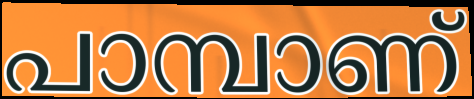
പാമ്പാണ്